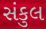
સંકુલ